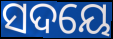
ସଦୟେ